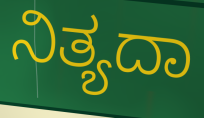
ನಿತ್ಯದಾ